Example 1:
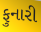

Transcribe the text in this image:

ફુનારી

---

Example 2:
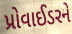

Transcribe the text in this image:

પ્રોવાઈડરને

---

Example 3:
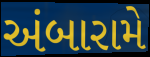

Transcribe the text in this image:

અંબારામે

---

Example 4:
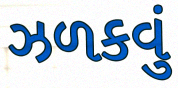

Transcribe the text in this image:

ઝળકવું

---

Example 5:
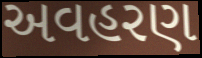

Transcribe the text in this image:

અવહરણ